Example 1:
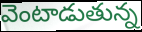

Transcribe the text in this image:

వెంటాడుతున్న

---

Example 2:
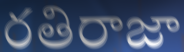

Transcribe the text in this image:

రతిరాజా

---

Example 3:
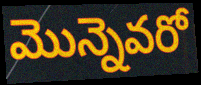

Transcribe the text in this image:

మొన్నెవరో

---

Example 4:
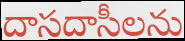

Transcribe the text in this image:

దాసదాసీలను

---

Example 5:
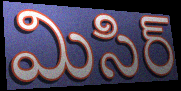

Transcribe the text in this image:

మిసిర్